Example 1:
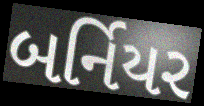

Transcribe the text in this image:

બર્નિયર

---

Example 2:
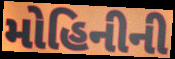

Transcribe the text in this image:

મોહિનીની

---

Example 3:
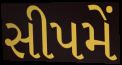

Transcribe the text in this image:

સીપમેં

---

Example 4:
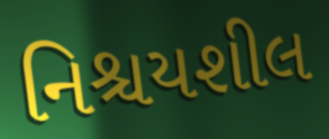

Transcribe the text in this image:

નિશ્ચયશીલ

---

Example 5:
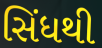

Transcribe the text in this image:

સિંધથી